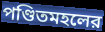
পণ্ডিতমহলের